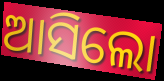
ଆସିଲୋ